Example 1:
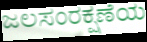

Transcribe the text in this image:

ಜಲಸಂರಕ್ಷಣೆಯ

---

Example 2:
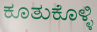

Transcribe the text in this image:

ಕೂತುಕೊಳ್ಳಿ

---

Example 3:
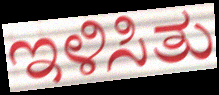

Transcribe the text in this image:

ಇಳಿಸಿತು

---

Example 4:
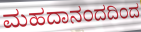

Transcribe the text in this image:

ಮಹದಾನಂದದಿಂದ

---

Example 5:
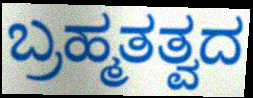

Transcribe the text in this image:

ಬ್ರಹ್ಮತತ್ವದ